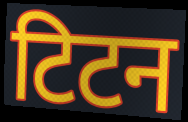
टिटन